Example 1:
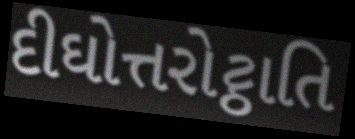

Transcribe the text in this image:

દીઘોત્તરોટ્ઠાતિ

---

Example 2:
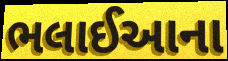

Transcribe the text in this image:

ભલાઈઆના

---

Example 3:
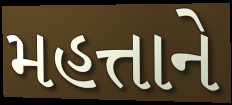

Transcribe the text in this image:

મહત્તાને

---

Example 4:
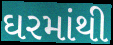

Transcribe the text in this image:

ઘરમાંથી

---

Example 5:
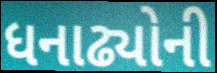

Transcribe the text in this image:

ધનાઢ્યોની